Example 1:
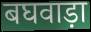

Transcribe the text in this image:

बघवाड़ा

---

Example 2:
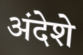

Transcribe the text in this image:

अंदेशे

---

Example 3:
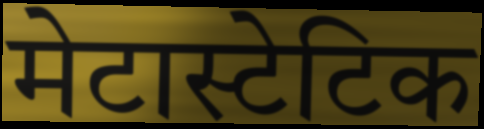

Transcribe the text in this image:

मेटास्टेटिक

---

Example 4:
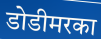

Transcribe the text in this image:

डोडीमरका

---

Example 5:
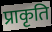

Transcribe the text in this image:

प्राकृति